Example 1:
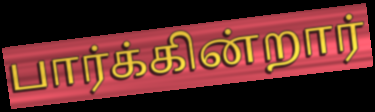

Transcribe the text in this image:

பார்க்கின்றார்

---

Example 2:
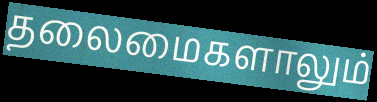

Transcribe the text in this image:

தலைமைகளாலும்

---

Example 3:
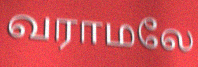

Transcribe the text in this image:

வராமலே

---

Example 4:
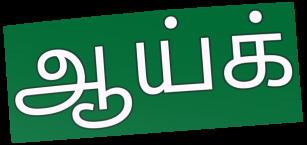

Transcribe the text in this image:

ஆய்க்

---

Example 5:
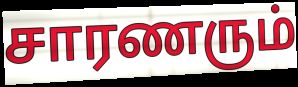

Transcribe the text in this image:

சாரணரும்